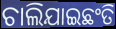
ଚାଲିଯାଇଛଂତି